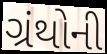
ગ્રંથોની